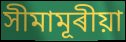
সীমামূৰীয়া